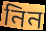
নিন